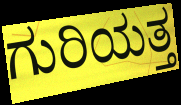
ಗುರಿಯತ್ತ